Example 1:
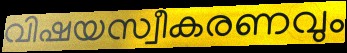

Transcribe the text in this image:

വിഷയസ്വീകരണവും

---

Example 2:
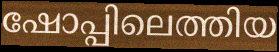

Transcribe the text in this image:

ഷോപ്പിലെത്തിയ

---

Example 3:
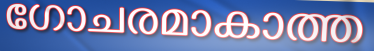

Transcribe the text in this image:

ഗോചരമാകാത്ത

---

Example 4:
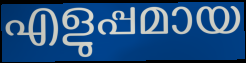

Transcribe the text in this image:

എളുപ്പമായ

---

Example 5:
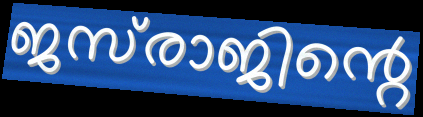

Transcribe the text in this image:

ജസ്‌രാജിന്റെ